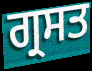
ਗ੍ਰਸਤ